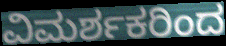
ವಿಮರ್ಶಕರಿಂದ